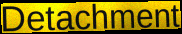
Detachment